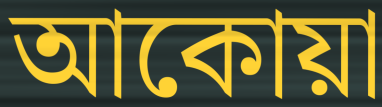
আকোয়া